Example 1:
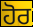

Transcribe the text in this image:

ਹੋਰ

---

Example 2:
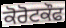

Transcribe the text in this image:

ਕੋਰੋਟਕੌਫ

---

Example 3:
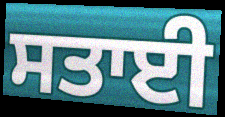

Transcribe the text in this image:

ਸਤਾਈ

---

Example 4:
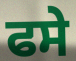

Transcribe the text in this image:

ਫਸੇ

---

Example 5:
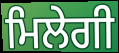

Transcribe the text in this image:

ਮਿਲੇਗੀ